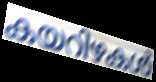
കയറിഴകൾ